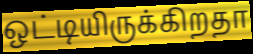
ஒட்டியிருக்கிறதா